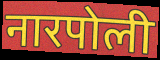
नारपोली